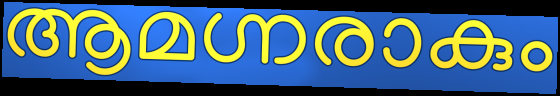
ആമഗ്നരാകും